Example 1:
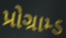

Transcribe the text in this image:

પ્રોગ્રામ્ડ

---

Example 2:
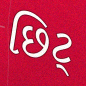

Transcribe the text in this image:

છિટ્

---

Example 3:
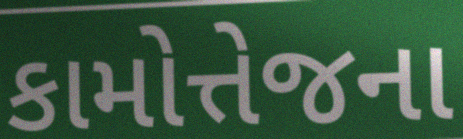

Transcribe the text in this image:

કામોત્તેજના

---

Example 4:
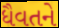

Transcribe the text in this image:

ધૈવતને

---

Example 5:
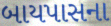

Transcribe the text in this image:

બાયપાસના